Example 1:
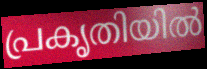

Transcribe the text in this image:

പ്രകൃതിയിൽ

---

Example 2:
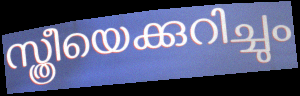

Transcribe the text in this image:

സ്ത്രീയെക്കുറിച്ചും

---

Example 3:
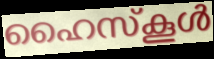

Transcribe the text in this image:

ഹൈസ്‌കൂൾ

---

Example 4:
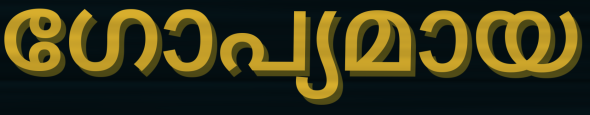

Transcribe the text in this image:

ഗോപ്യമായ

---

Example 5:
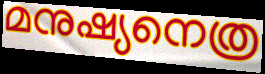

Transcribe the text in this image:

മനുഷ്യനെത്ര